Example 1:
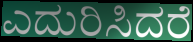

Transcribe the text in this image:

ಎದುರಿಸಿದರೆ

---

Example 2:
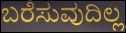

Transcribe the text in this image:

ಬರೆಸುವುದಿಲ್ಲ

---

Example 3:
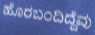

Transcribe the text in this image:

ಹೊರಬಂದಿದ್ದೆವು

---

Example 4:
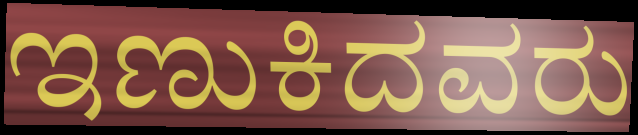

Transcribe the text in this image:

ಇಣುಕಿದವರು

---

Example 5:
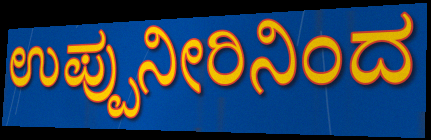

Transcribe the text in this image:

ಉಪ್ಪುನೀರಿನಿಂದ